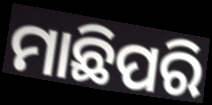
ମାଛିପରି